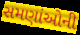
સમણાંઓની